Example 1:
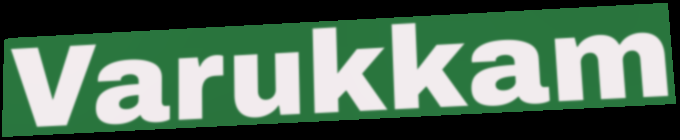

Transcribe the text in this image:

Varukkam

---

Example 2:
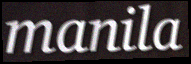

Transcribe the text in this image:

manila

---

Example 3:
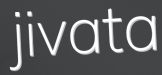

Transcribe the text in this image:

jivata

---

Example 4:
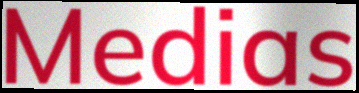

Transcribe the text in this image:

Medias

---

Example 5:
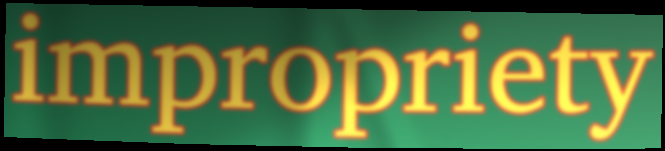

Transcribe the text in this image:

impropriety